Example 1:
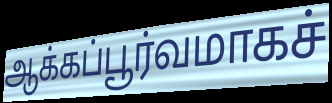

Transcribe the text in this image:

ஆக்கப்பூர்வமாகச்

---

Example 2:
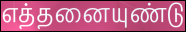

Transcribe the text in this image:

எத்தனையுண்டு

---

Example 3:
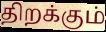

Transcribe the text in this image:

திறக்கும்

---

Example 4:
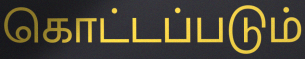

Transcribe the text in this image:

கொட்டப்படும்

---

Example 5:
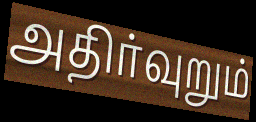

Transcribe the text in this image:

அதிர்வுறும்